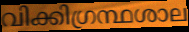
വിക്കിഗ്രന്ഥശാല